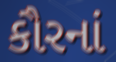
કૌરનાં